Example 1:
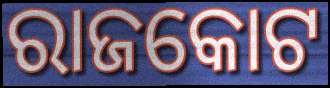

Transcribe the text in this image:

ରାଜକୋଟ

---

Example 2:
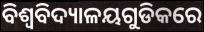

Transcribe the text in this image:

ବିଶ୍ୱବିଦ୍ୟାଳୟଗୁଡିକରେ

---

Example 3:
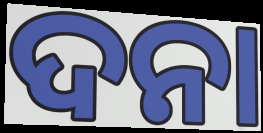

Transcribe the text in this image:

ଦନା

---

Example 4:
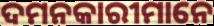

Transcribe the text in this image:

ଦମନକାରୀମାନେ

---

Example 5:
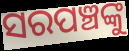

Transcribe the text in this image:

ସରପଞ୍ଚଙ୍କୁ